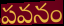
పవనం